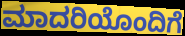
ಮಾದರಿಯೊಂದಿಗೆ